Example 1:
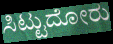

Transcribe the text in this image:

ಸಿಟ್ಟುದೋರು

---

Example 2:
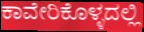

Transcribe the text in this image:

ಕಾವೇರಿಕೊಳ್ಳದಲ್ಲಿ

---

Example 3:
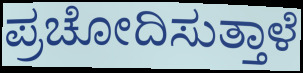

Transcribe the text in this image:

ಪ್ರಚೋದಿಸುತ್ತಾಳೆ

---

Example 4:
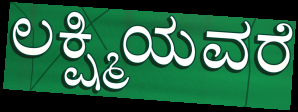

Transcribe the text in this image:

ಲಕ್ಷ್ಮಿಯವರೆ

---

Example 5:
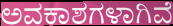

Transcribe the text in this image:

ಅವಕಾಶಗಳಾಗಿವೆ